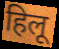
हिलू